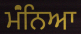
ਮੰਂਨਿਆ